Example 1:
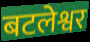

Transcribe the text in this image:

बटलेश्वर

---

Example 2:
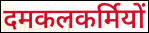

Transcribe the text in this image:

दमकलकर्मियों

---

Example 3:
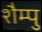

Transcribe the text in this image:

शैम्पु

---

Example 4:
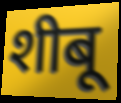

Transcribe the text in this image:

शीबू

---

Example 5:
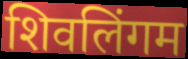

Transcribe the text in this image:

शिवलिंगम